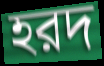
হরদ